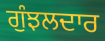
ਗੁੰਝਲਦਾਰ